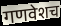
गणवेशच